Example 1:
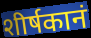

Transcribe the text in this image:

शीर्षकानं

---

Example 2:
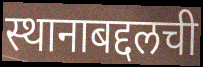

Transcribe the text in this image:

स्थानाबद्दलची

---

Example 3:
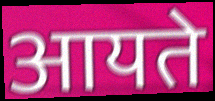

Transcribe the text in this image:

आयते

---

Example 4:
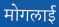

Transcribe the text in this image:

मोगलाई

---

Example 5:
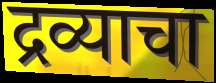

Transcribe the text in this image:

द्रव्याचा